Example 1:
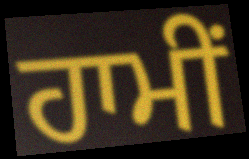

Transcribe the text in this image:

ਹਾਮੀਂ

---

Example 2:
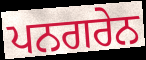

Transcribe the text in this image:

ਪਨਗਰੇਨ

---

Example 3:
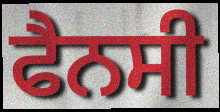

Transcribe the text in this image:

ਫੈਨਸੀ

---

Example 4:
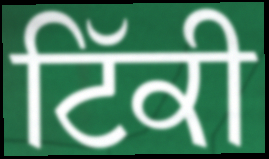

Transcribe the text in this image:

ਟਿੱਕੀ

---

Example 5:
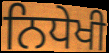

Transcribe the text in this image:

ਨਿਧੇਖੀ